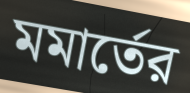
মমার্তের